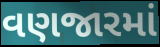
વણજારમાં